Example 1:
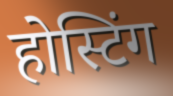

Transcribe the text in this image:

होस्टिंग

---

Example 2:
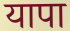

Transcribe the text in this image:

यापा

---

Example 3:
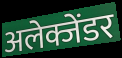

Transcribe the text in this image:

अलेक्जेंडर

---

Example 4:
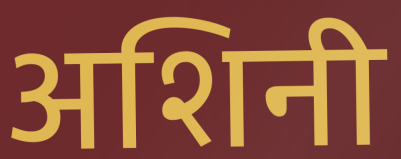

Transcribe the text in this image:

अशिनी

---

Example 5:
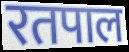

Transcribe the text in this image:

रतपाल